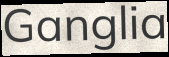
Ganglia